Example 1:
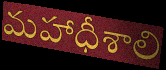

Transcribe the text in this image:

మహాధీశాలి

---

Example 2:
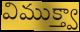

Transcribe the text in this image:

విముక్త్వా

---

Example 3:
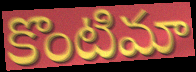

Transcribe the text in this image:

కొంటిమా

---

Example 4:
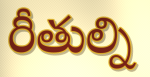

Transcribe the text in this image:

రీతుల్ని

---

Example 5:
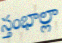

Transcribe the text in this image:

స్తంభాల్లా